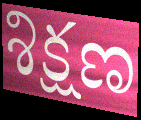
శిక్షణ